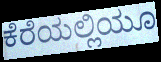
ಕೆರೆಯಲ್ಲಿಯೂ